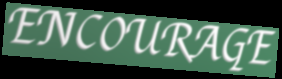
ENCOURAGE